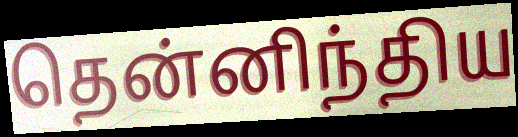
தென்னிந்திய